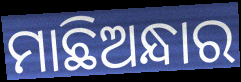
ମାଛିଅନ୍ଧାର